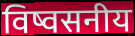
विष्वसनीय